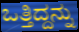
ಒತ್ತಿದ್ದನ್ನು